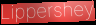
Lippershey